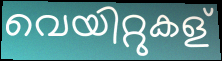
വെയിറ്റുകള്